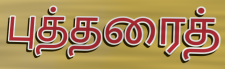
புத்தரைத்